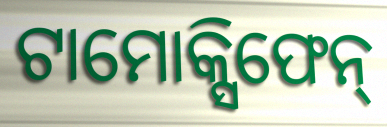
ଟାମୋକ୍ସିଫେନ୍